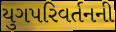
યુગપરિવર્તનની